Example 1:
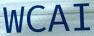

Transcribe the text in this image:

WCAI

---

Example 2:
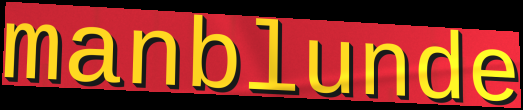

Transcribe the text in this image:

manblunde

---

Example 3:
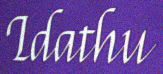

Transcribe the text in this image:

Idathu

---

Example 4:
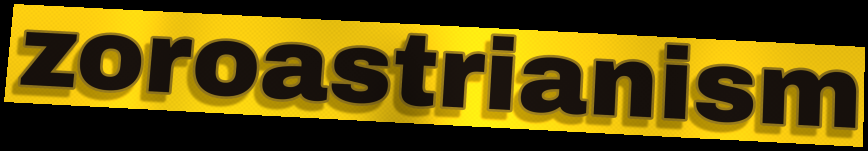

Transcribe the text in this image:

zoroastrianism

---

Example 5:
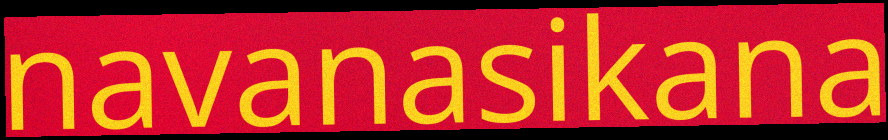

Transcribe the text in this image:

navanasikana